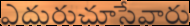
ఎదురుచూసేవారు